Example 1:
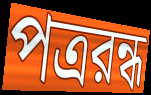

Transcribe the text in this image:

পত্ররন্ধ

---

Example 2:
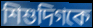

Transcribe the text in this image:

শিশুদিগকে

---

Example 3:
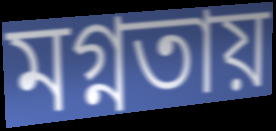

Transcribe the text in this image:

মগ্নতায়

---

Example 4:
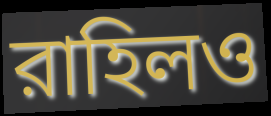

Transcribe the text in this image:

রাহিলও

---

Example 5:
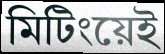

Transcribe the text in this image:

মিটিংয়েই